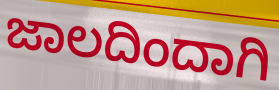
ಜಾಲದಿಂದಾಗಿ